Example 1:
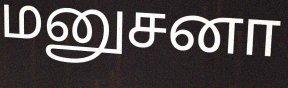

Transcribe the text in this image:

மனுசனா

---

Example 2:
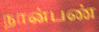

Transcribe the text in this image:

நான்பண்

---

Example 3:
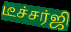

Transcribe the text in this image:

டீச்சர்ஜி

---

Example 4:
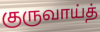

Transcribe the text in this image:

குருவாய்த்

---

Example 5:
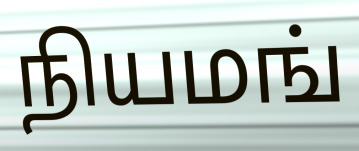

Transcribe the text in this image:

நியமங்